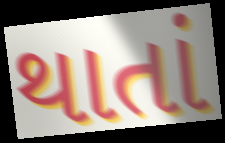
થાતાં